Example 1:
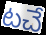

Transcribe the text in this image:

టచే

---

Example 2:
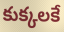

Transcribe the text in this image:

కుక్కలకే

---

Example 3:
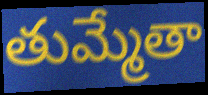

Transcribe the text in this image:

తుమ్మేతా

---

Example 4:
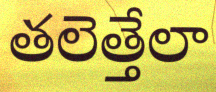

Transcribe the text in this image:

తలెత్తేలా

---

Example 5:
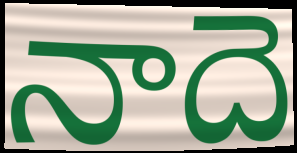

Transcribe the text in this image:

నాదె